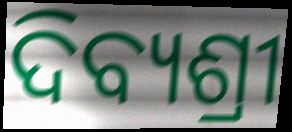
ଦିବ୍ୟଶ୍ରୀ